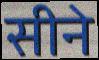
सीने